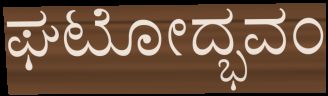
ಘಟೋದ್ಭವಂ